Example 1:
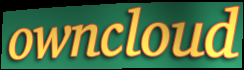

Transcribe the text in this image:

owncloud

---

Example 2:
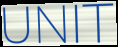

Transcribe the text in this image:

UNIT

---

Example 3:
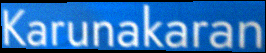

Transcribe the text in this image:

Karunakaran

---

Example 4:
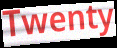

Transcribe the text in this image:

Twenty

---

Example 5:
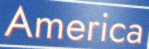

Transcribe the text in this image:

America